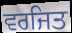
ਵਰਜਿਤ